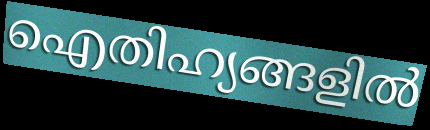
ഐതിഹ്യങ്ങളിൽ